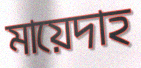
মায়েদাহ